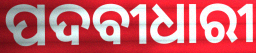
ପଦବୀଧାରୀ